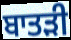
ਬਾਤੜੀ